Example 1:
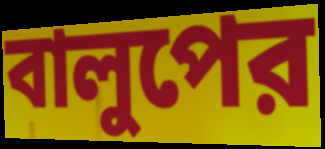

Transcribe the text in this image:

বালুপের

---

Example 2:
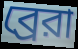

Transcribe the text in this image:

ব্রেরা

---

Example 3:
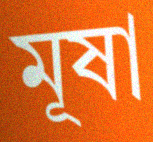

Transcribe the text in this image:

মূষা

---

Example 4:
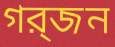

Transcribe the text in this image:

গর্‍জন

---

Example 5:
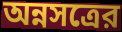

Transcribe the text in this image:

অন্নসত্রের